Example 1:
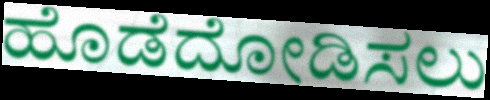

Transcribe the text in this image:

ಹೊಡೆದೋಡಿಸಲು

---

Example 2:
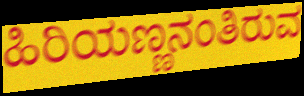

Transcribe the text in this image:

ಹಿರಿಯಣ್ಣನಂತಿರುವ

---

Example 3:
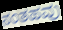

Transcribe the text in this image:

ನಂತಹವು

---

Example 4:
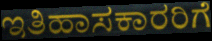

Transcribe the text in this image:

ಇತಿಹಾಸಕಾರರಿಗೆ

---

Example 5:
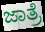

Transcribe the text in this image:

ಜಾತ್ರೆ